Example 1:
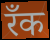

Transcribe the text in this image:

रँक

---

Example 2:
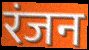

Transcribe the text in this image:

रंजन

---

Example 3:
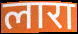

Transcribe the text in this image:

लारा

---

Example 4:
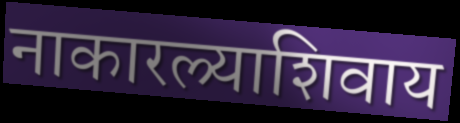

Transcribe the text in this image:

नाकारल्याशिवाय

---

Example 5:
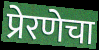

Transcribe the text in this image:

प्रेरणेचा